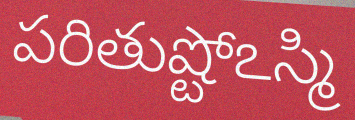
పరితుష్టోఽస్మి